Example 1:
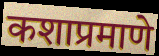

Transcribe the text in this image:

कशाप्रमाणे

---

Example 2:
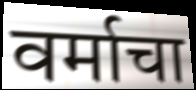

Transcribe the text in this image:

वर्माचा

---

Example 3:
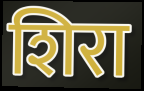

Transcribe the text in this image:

शिरा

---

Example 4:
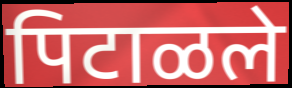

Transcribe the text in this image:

पिटाळले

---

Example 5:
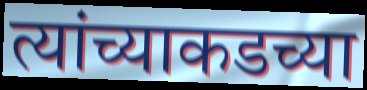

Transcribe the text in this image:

त्यांच्याकडच्या